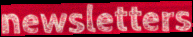
newsletters